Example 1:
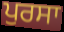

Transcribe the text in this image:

ਪੁਰਸਾ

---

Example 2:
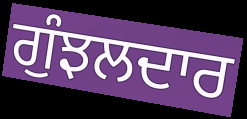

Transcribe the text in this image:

ਗੁੰਝਲਦਾਰ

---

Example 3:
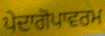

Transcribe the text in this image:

ਪੇਦਾਗੋਪਾਵਰਮ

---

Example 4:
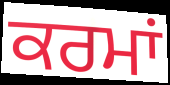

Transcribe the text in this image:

ਕਰਮਾਂ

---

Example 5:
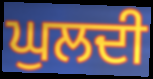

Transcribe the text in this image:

ਘੁਲਦੀ